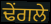
ਢੇਂਗਲੇ